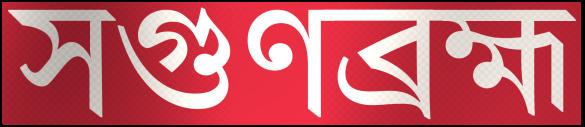
সগুণব্রহ্ম